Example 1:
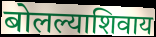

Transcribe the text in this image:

बोलल्याशिवाय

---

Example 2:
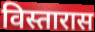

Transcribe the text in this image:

विस्तारास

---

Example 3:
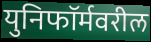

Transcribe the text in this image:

युनिफॉर्मवरील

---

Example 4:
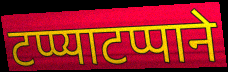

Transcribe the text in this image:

टप्प्याटप्पाने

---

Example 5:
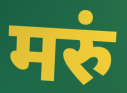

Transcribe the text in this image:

मरुं